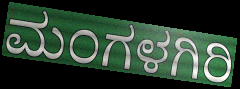
ಮಂಗಳಗಿರಿ